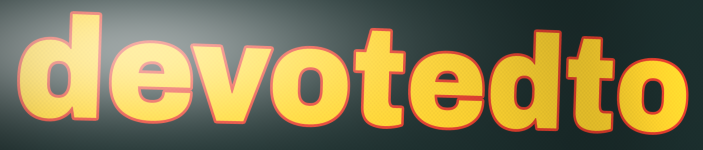
devotedto